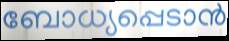
ബോധ്യപ്പെടാൻ